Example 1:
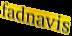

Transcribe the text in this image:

fadnavis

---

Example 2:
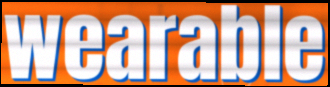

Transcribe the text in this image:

wearable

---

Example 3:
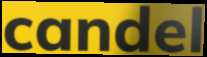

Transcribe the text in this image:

candel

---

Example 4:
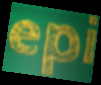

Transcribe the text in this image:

epi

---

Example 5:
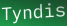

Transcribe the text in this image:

Tyndis